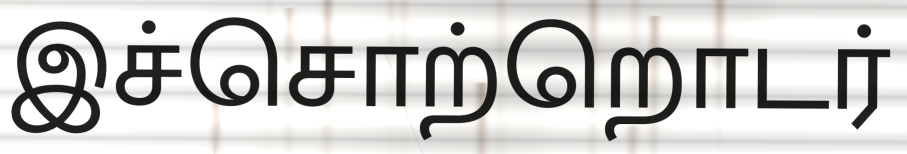
இச்சொற்றொடர்